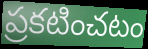
ప్రకటించటం